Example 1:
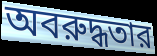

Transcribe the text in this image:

অবরুদ্ধতার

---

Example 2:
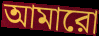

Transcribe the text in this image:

আমারো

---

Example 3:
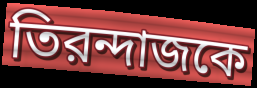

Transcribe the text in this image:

তিরন্দাজকে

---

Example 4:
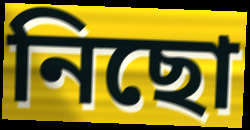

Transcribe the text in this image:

নিছো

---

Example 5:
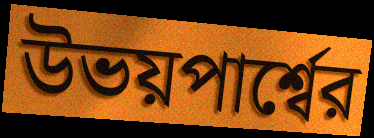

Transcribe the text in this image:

উভয়পার্শ্বের